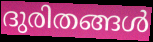
ദുരിതങ്ങൾ